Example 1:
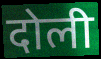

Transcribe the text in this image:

दोली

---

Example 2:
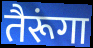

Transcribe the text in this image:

तैरूंगा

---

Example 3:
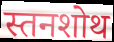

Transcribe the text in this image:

स्तनशोथ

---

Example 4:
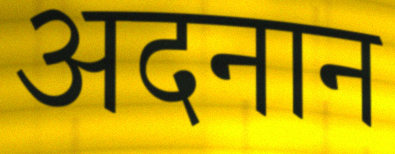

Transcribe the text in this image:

अदनान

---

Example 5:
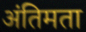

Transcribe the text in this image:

अंतिमता